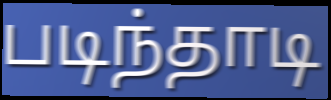
படிந்தாடி